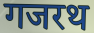
गजरथ